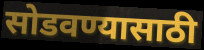
सोडवण्यासाठी